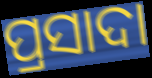
ପ୍ରସାଦା